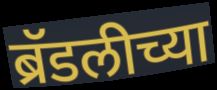
ब्रॅडलीच्या